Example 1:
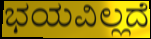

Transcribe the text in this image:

ಭಯವಿಲ್ಲದೆ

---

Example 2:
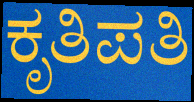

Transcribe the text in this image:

ಕೃತಿಪತಿ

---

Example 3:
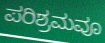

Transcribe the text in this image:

ಪರಿಶ್ರಮವೂ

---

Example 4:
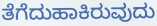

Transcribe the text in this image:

ತೆಗೆದುಹಾಕಿರುವುದು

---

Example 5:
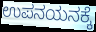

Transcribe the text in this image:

ಉಪನಯನಕ್ಕೆ